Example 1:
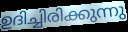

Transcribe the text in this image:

ഉദിച്ചിരിക്കുന്നു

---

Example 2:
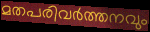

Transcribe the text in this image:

മതപരിവർത്തനവും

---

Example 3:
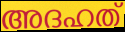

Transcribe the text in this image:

അദഹത്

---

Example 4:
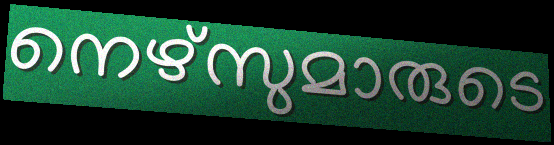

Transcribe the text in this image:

നെഴ്സുമാരുടെ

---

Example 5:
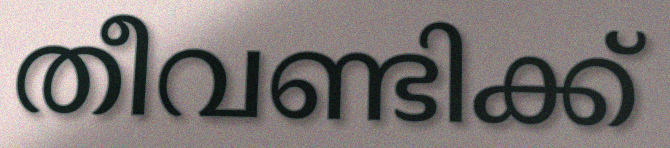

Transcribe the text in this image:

തീവണ്ടിക്ക്